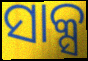
ସାକ୍ସ